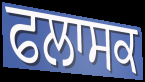
ਫਲਾਸਕ